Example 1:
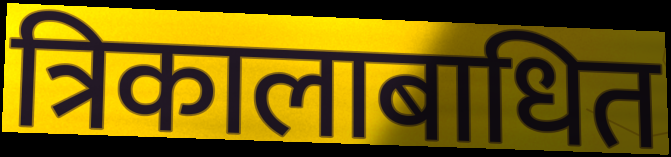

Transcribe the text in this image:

त्रिकालाबाधित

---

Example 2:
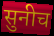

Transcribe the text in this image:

सुनीच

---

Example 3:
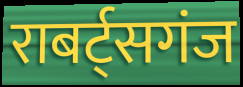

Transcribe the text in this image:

राबर्ट्सगंज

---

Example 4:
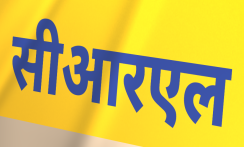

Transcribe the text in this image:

सीआरएल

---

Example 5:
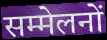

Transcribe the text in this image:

सम्‍मेलनों